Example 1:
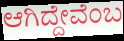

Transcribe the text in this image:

ಆಗಿದ್ದೇವೆಂಬ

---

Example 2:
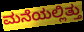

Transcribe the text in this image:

ಮನೆಯಲ್ಲಿತ್ತು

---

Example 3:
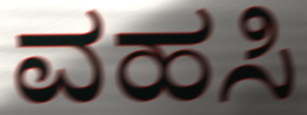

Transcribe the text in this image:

ವಹಸಿ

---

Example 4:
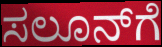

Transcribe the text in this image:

ಸಲೂನ್‍ಗೆ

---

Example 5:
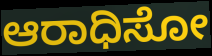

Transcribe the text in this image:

ಆರಾಧಿಸೋ